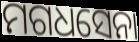
ମଗଧସେନା